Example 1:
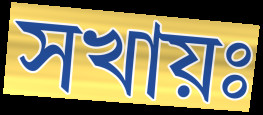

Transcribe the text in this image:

সখায়ঃ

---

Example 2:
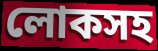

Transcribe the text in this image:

লোকসহ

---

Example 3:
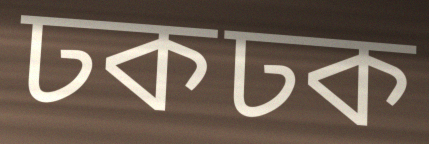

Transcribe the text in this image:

ঢকঢক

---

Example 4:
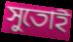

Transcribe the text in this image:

সুতোই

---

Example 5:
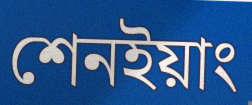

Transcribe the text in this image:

শেনইয়াং